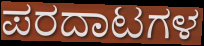
ಪರದಾಟಗಳ